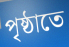
পৃষ্ঠাতে